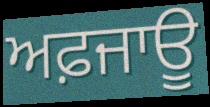
ਅਫ਼ਜਾਊ